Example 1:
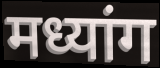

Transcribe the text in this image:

मध्यांग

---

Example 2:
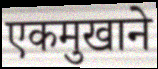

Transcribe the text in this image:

एकमुखाने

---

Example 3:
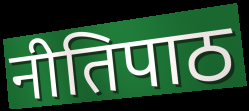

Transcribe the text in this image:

नीतिपाठ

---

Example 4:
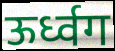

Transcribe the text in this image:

ऊर्ध्वग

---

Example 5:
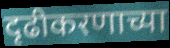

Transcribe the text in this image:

दृढीकरणाच्या